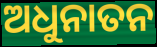
ଅଧୁନାତନ